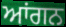
ਆਂਗਨ